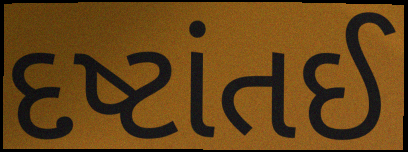
દષ્ટાંતઈ